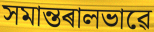
সমান্তৰালভাৱে